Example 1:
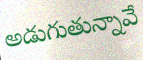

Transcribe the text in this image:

అడుగుతున్నావే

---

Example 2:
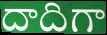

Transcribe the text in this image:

దాదిగా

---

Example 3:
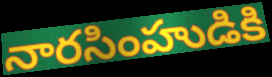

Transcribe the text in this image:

నారసింహుడికి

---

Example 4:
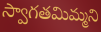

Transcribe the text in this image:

స్వాగతమిమ్మని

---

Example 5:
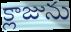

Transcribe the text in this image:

క్లాజును